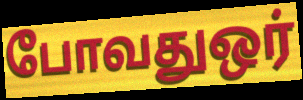
போவதுஒர்